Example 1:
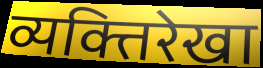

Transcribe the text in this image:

व्यक्तिरेखा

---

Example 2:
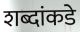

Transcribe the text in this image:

शब्दांकडे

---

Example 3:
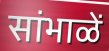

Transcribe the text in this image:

सांभाळें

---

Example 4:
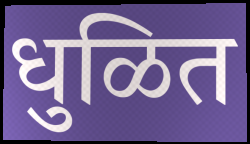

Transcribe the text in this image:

धुळित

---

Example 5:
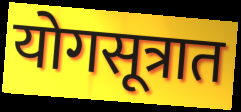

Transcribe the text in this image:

योगसूत्रात